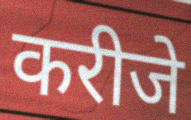
करीजे